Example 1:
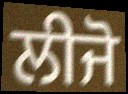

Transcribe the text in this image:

ਲੀਜੋ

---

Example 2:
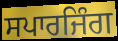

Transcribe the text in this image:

ਸਪਾਰਜਿੰਗ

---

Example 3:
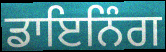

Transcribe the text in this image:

ਡਾਇਨਿੰਗ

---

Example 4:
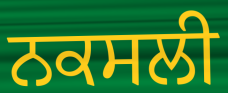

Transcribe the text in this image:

ਨਕਸਲੀ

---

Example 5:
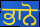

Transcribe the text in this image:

ਭਾਨੋ